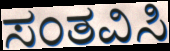
ಸಂತವಿಸಿ